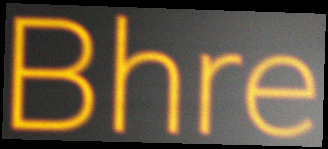
Bhre